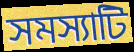
সমস্যাটি